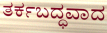
ತರ್ಕಬದ್ಧವಾದ